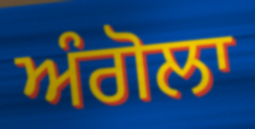
ਅੰਗੋਲਾ